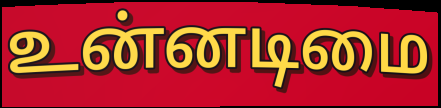
உன்னடிமை